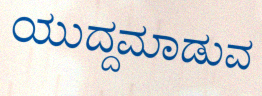
ಯುದ್ದಮಾಡುವ